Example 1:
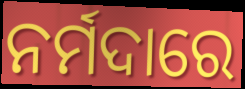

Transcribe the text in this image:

ନର୍ମଦାରେ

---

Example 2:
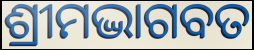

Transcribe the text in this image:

ଶ୍ରୀମଦ୍ଭାଗବତ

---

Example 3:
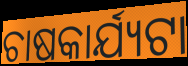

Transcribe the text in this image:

ଚାଷକାର୍ଯ୍ୟଟା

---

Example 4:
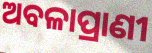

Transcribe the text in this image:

ଅବଳାପ୍ରାଣୀ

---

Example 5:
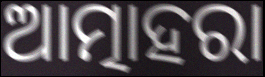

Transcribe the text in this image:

ଆତ୍ମାହରା